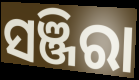
ସଞ୍ଜିରା